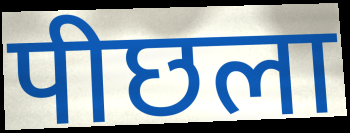
पीछला